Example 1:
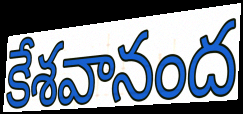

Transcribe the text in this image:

కేశవానంద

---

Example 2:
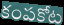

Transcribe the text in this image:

కంపకోట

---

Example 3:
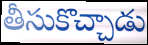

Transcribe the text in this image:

తీసుకొచ్చాడు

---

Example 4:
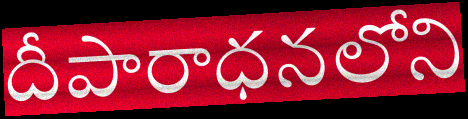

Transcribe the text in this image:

దీపారాధనలోని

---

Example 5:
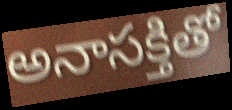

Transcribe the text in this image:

అనాసక్తితో